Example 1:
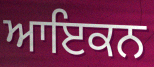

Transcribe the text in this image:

ਆਇਕਨ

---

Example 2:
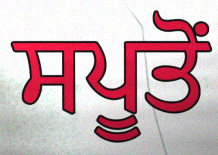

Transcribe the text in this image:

ਸਪੂਤੋਂ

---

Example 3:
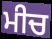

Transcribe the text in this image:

ਮੀਚ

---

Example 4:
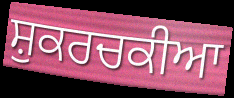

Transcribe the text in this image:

ਸ਼ੁਕਰਚਕੀਆ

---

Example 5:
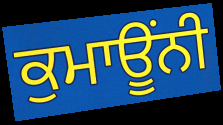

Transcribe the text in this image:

ਕੁਮਾਊਂਨੀ